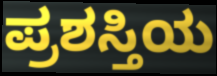
ಪ್ರಶಸ್ತಿಯ